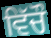
ਵਿੱਚੌ